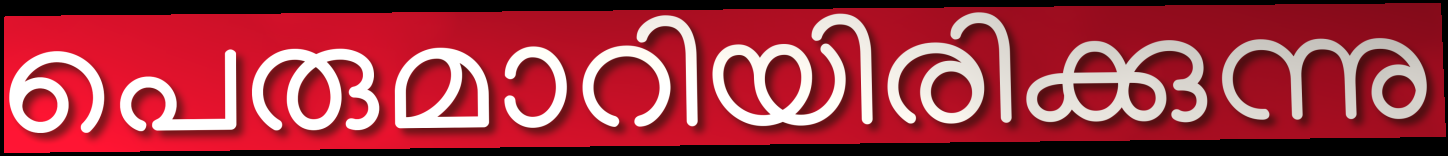
പെരുമാറിയിരിക്കുന്നു